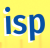
isp